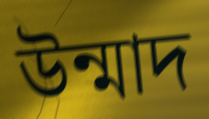
উন্মাদ